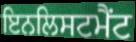
ਇਨਲਿਸਟਮੈਂਟ